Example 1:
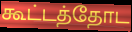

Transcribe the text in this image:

கூட்டத்தோட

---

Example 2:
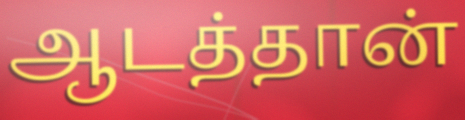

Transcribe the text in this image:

ஆடத்தான்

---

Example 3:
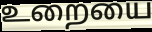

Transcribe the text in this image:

உறையை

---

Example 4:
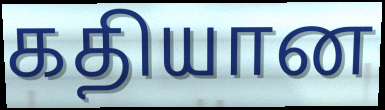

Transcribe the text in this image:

கதியான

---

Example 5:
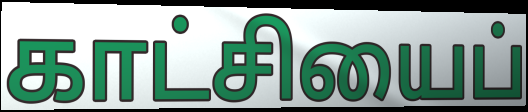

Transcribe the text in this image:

காட்சியைப்